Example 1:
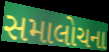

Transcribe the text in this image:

સમાલોચના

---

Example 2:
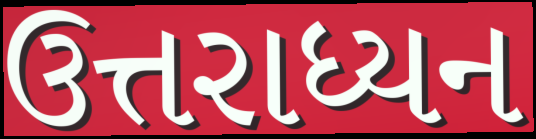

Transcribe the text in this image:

ઉત્તરાધ્યન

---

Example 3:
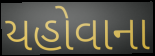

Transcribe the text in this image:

યહોવાના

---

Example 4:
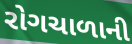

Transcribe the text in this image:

રોગચાળાની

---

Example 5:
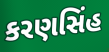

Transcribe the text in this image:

કરણસિંહ